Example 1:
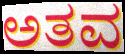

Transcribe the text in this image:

ಅತವ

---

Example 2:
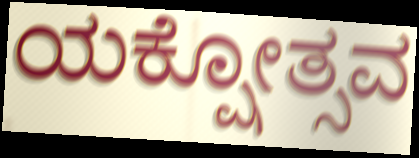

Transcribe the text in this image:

ಯಕ್ಷೋತ್ಸವ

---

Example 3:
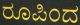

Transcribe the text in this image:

ರೂಪಿಂದ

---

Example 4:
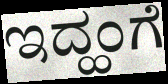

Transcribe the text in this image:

ಇದ್ಹಂಗೆ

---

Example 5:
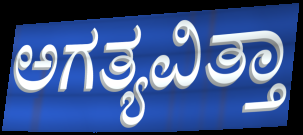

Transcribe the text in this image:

ಅಗತ್ಯವಿತ್ತಾ